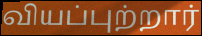
வியப்புற்றார்